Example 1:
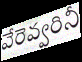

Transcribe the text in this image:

వేరెవ్వరినీ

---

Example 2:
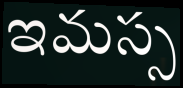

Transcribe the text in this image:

ఇమస్స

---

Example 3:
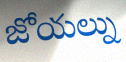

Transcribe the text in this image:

జోయల్ను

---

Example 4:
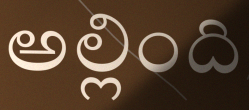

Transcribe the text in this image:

అల్లింది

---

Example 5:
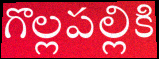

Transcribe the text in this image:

గొల్లపల్లికి